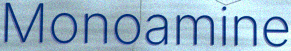
Monoamine